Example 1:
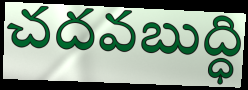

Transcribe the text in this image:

చదవబుద్ధి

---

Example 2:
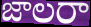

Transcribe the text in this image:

జాలరా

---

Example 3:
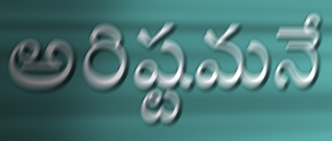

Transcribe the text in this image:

అరిష్టమనే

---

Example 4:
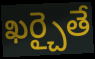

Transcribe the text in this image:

ఖర్చైతే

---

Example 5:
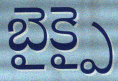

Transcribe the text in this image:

బైక్పై